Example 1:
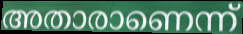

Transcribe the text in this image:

അതാരാണെന്ന്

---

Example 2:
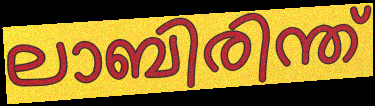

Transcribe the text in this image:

ലാബിരിന്ത്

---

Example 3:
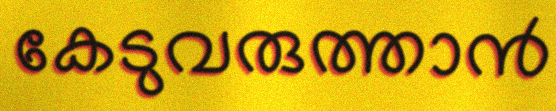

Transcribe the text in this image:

കേടുവരുത്താൻ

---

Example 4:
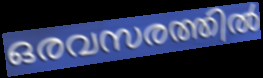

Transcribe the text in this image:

ഒരവസരത്തിൽ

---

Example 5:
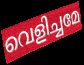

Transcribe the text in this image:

വെളിച്ചമേ